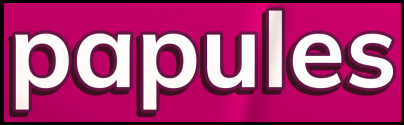
papules